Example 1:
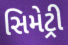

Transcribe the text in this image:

સિમેટ્રી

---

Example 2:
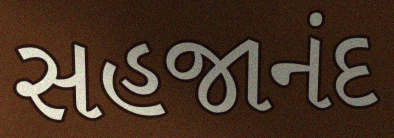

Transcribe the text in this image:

સહજાનંદ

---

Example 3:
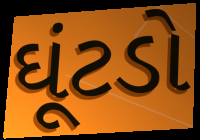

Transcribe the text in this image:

ઘૂંટડો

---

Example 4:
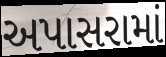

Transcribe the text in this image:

અપાસરામાં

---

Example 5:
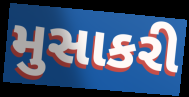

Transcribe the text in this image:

મુસાકરી